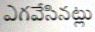
ఎగవేసినట్లు